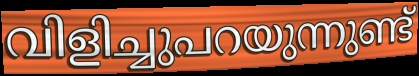
വിളിച്ചുപറയുന്നുണ്ട്